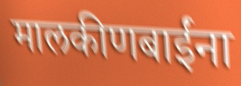
मालकीणबाईंना